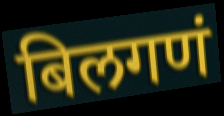
बिलगणं